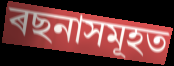
ৰছনাসমূহত